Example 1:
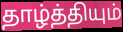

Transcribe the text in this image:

தாழ்த்தியும்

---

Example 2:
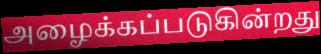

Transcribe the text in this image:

அழைக்கப்படுகின்றது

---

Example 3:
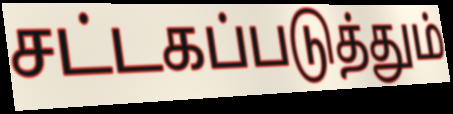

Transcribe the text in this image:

சட்டகப்படுத்தும்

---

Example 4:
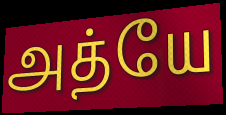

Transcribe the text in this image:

அத்யே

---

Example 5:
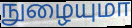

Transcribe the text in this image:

நுழையுமா